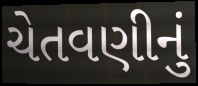
ચેતવણીનું